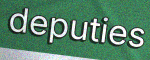
deputies